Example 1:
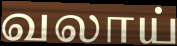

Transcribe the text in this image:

வலாய்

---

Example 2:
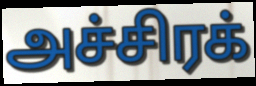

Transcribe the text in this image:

அச்சிரக்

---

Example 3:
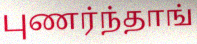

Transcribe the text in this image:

புணர்ந்தாங்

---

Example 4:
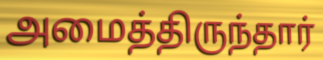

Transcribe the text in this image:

அமைத்திருந்தார்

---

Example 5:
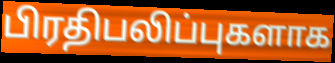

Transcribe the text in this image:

பிரதிபலிப்புகளாக